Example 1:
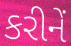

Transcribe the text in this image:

કરીનેં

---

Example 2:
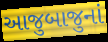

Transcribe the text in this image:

આજુબાજુનાં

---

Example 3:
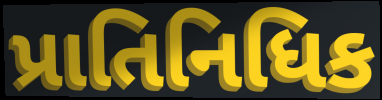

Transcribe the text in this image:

પ્રાતિનિધિક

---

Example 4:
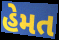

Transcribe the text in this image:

હેમત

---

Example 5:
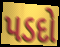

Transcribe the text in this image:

પડદો